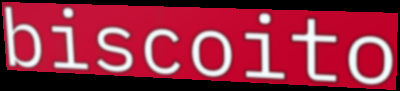
biscoito